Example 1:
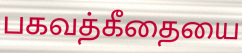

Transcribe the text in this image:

பகவத்கீதையை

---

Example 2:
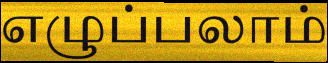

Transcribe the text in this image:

எழுப்பலாம்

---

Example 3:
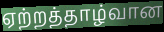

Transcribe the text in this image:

ஏற்றத்தாழ்வான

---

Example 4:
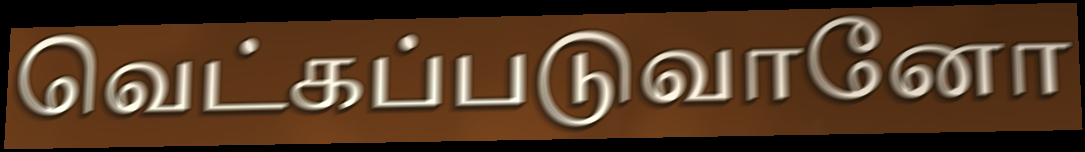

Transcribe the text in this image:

வெட்கப்படுவானோ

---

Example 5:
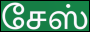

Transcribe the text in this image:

சேஸ்